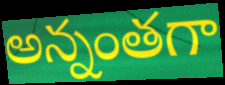
అన్నంతగా